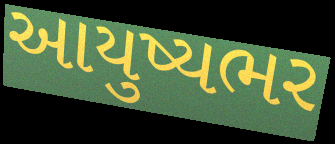
આયુષ્યભર